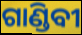
ଗାଣ୍ଡିବୀ